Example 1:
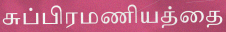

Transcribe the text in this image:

சுப்பிரமணியத்தை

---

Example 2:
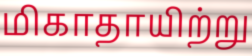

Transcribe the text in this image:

மிகாதாயிற்று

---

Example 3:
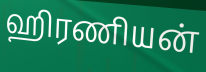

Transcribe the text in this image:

ஹிரணியன்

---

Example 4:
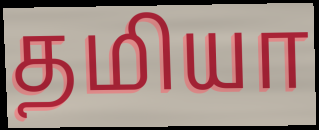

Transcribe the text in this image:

தமியா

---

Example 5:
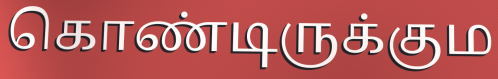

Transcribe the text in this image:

கொண்டிருக்கும